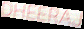
DHEERAJ